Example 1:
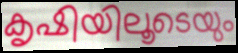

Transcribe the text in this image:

കൃഷിയിലൂടെയും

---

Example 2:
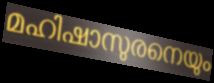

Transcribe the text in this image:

മഹിഷാസുരനെയും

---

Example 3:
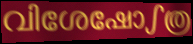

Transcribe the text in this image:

വിശേഷോഽത്ര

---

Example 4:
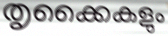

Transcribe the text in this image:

തൃക്കൈകളും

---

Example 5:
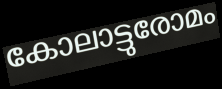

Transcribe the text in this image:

കോലാട്ടുരോമം